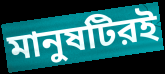
মানুষটিরই